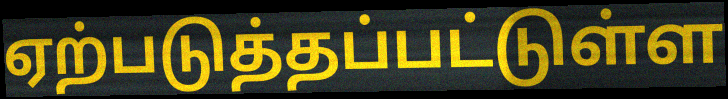
ஏற்படுத்தப்பட்டுள்ள